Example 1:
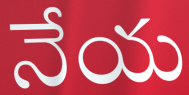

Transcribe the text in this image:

నేయ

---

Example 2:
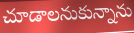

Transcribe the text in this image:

చూడాలనుకున్నాను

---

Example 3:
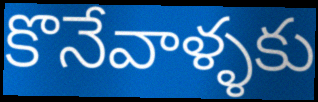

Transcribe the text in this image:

కొనేవాళ్ళకు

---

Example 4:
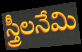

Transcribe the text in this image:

స్త్రీలనేమి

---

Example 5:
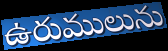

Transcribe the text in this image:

ఉరుములును